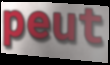
peut